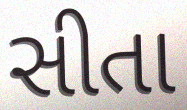
સીતા